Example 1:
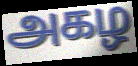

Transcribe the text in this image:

அகழ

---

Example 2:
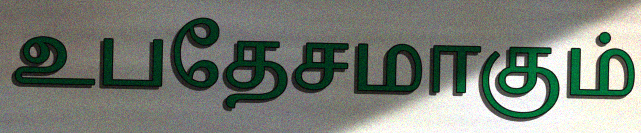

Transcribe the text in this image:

உபதேசமாகும்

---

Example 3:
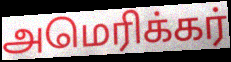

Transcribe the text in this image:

அமெரிக்கர்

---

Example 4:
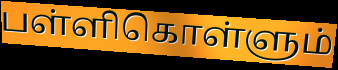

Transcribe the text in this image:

பள்ளிகொள்ளும்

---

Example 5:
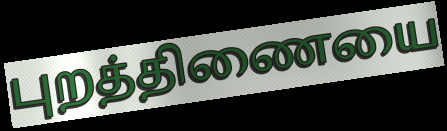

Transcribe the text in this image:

புறத்திணையை